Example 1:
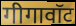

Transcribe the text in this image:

गीगावॉट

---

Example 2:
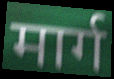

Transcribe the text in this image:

मार्ग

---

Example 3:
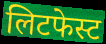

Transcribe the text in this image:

लिटफेस्ट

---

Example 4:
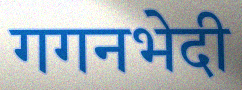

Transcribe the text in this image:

गगनभेदी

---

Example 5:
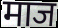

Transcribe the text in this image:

माज